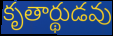
కృతార్థుడవు